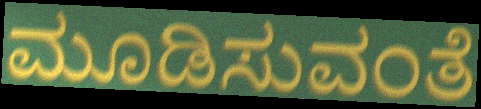
ಮೂಡಿಸುವಂತೆ